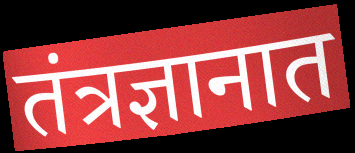
तंत्रज्ञानात